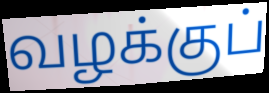
வழக்குப்